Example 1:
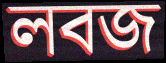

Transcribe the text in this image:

লবজ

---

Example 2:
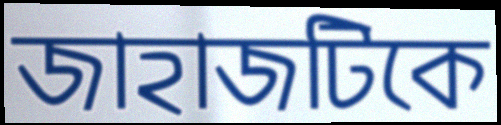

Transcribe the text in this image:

জাহাজটিকে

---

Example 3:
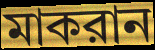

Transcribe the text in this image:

মাকরান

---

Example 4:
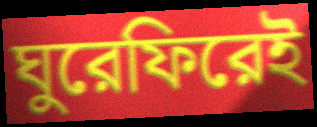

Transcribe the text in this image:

ঘুরেফিরেই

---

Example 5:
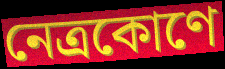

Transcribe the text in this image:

নেত্রকোণে